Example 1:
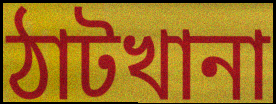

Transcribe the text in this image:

ঠাটখানা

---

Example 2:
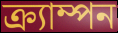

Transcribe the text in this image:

ক্র্যাম্পন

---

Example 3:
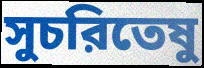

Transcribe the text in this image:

সুচরিতেষু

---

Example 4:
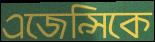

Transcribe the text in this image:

এজেন্সিকে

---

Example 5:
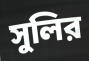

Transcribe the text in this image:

সুলির